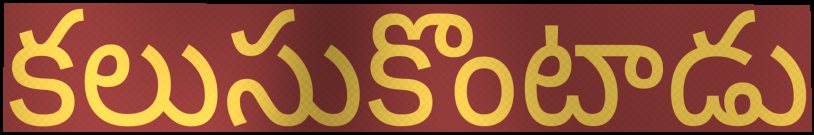
కలుసుకొంటాడు